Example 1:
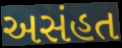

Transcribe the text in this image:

અસંહત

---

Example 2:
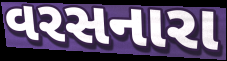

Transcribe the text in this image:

વરસનારા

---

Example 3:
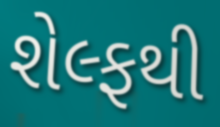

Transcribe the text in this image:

શેલ્ફથી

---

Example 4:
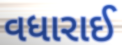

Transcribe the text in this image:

વધારાઈ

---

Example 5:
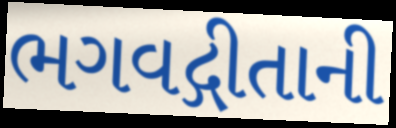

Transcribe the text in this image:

ભગવદ્ગીતાની